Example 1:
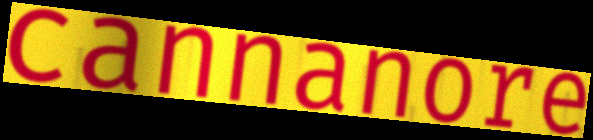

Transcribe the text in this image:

cannanore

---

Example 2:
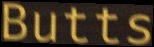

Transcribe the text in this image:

Butts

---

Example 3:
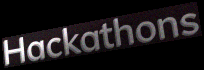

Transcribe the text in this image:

Hackathons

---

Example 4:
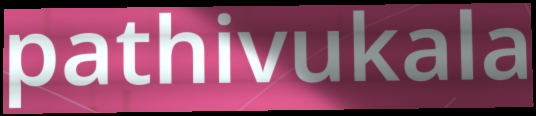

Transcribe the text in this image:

pathivukala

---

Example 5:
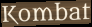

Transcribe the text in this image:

Kombat